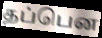
தப்பென